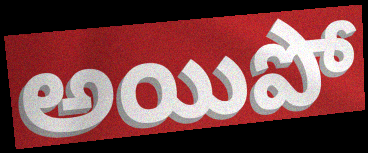
అయిపో